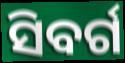
ସିବର୍ଗ